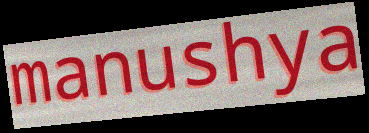
manushya